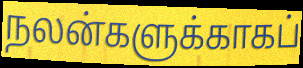
நலன்களுக்காகப்